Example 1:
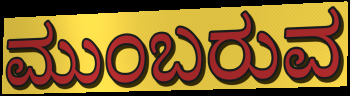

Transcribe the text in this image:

ಮುಂಬರುವ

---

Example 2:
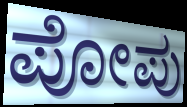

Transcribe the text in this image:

ಪೋಪು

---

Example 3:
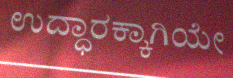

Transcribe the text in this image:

ಉದ್ಧಾರಕ್ಕಾಗಿಯೇ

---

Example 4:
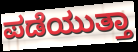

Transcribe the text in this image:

ಪಡೆಯುತ್ತಾ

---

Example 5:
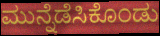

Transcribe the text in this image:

ಮುನ್ನೆಡೆಸಿಕೊಂಡು